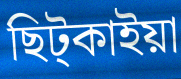
ছিট্কাইয়া